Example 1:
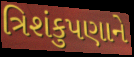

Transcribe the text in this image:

ત્રિશંકુપણાને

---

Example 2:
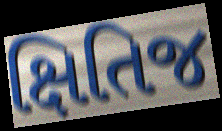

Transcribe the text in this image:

ક્ષિતિજ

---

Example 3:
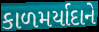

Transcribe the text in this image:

કાળમર્યાદાને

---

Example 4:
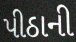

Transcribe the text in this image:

પીઠાની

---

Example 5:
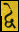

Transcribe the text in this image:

દ્વે